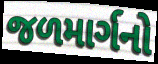
જળમાર્ગનો